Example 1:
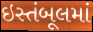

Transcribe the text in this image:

ઇસ્તંબૂલમાં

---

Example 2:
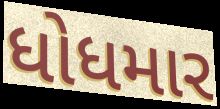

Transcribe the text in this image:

ધોધમાર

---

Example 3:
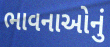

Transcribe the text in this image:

ભાવનાઓનું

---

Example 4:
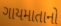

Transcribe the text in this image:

ગાયમાતાનો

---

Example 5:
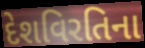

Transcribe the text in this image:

દેશવિરતિના